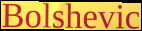
Bolshevic